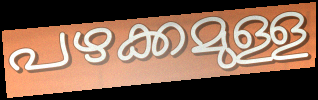
പഴക്കമുള്ള